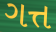
ગત્ત